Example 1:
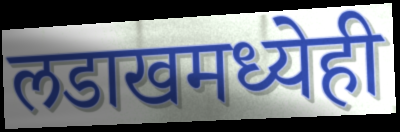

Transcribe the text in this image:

लडाखमध्येही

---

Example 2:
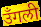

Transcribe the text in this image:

उँगली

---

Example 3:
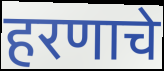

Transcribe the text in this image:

हरणाचे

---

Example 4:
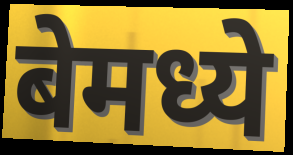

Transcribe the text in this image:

बेमध्ये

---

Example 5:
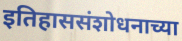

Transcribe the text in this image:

इतिहाससंशोधनाच्या